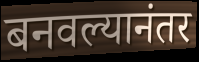
बनवल्यानंतर